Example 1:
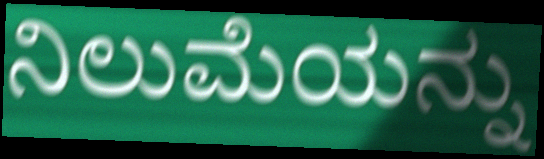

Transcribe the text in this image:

ನಿಲುಮೆಯನ್ನು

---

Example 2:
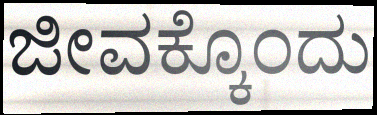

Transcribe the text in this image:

ಜೀವಕ್ಕೊಂದು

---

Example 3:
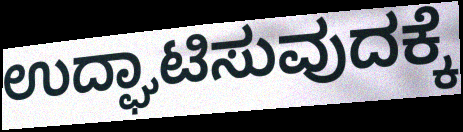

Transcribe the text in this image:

ಉದ್ಘಾಟಿಸುವುದಕ್ಕೆ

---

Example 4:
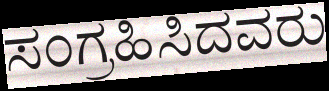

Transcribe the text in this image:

ಸಂಗ್ರಹಿಸಿದವರು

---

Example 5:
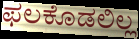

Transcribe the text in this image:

ಫಲಕೊಡಲಿಲ್ಲ